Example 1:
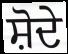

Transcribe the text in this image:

ਸ਼ੋਦੇ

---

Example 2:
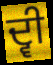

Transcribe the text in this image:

ਦ੍ਵੀ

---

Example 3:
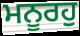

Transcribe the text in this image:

ਮਨੂਰਹੁ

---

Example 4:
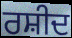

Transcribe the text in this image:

ਰਸ਼ੀਦ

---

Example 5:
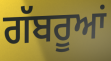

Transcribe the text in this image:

ਗੱਬਰੂਆਂ